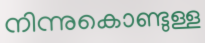
നിന്നുകൊണ്ടുള്ള